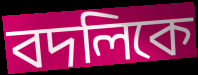
বদলিকে